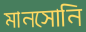
মানসোনি